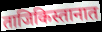
ताजिकिस्तानात